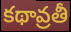
కథావ్రతీ